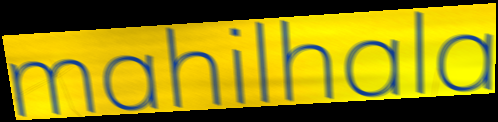
mahilhala